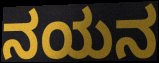
ನಯನ